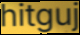
hitguj